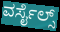
ವರ್ಸೈಲ್ಸ್